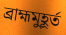
ব্রাহ্মমুহূর্ত